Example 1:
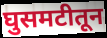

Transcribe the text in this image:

घुसमटीतून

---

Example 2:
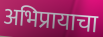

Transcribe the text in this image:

अभिप्रायाचा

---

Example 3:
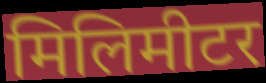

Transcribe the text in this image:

मिलिमीटर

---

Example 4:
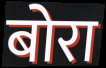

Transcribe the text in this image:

बोरा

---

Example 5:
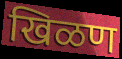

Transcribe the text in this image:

खिळण